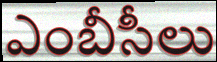
ఎంబీసీలు